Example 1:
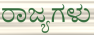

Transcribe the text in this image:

ರಾಜ್ಯಗಳು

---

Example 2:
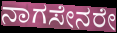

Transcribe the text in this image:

ನಾಗಸೇನರೇ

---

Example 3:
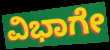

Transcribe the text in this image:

ವಿಭಾಗೇ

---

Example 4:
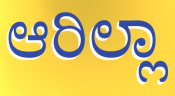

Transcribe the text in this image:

ಆರಿಲ್ಲಾ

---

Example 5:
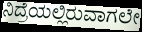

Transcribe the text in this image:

ನಿದ್ರೆಯಲ್ಲಿರುವಾಗಲೇ